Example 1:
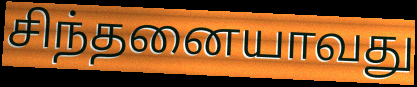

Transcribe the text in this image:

சிந்தனையாவது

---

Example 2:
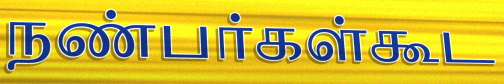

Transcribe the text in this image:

நண்பர்கள்கூட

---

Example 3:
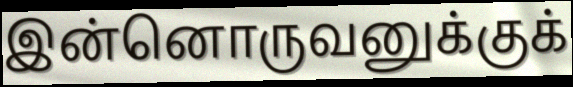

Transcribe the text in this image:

இன்னொருவனுக்குக்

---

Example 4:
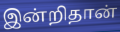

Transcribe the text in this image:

இன்றிதான்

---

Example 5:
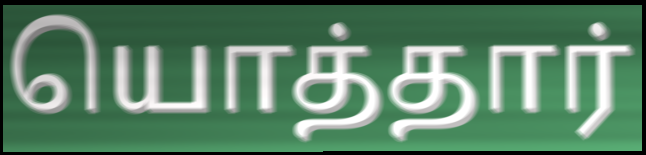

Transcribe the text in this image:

யொத்தார்